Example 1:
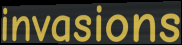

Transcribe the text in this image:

invasions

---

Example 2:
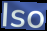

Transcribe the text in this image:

Iso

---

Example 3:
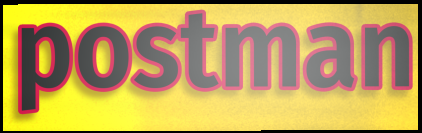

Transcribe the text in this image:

postman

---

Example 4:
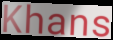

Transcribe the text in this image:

Khans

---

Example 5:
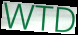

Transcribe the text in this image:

WTD